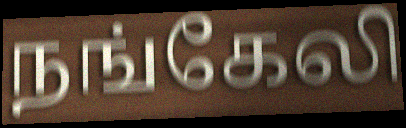
நங்கேலி